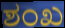
ಶಂಖ